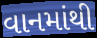
વાનમાંથી